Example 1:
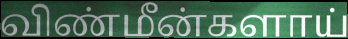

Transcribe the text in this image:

விண்மீன்களாய்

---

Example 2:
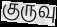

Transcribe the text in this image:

குருவு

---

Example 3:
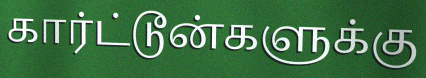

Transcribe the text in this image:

கார்ட்டூன்களுக்கு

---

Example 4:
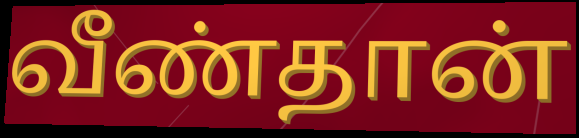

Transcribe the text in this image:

வீண்தான்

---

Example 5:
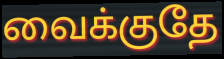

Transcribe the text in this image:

வைக்குதே